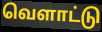
வெளாட்டு